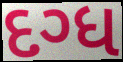
દગ્ધ